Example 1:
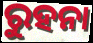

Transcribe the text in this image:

ରୁହନା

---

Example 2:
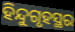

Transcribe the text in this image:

ହିନ୍ଦୁଗୃହସ୍ଥର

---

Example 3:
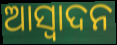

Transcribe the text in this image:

ଆସ୍ୱାଦନ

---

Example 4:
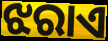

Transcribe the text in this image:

ଝରାଏ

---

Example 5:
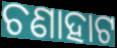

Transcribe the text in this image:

ଚଣାହାଟ